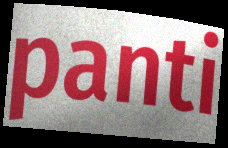
panti